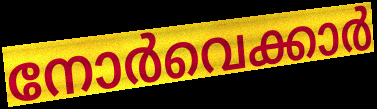
നോർവെക്കാർ